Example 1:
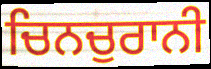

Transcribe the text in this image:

ਚਿਨਚੁਰਾਨੀ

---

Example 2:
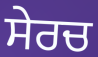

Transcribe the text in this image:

ਸੇਰਚ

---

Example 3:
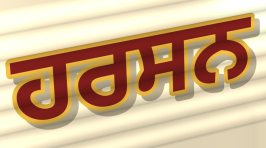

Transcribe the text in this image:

ਹਰਸਨ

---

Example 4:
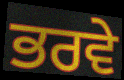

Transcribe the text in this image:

ਭਰਵੇ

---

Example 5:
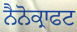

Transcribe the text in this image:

ਨੈਨੋਕ੍ਰਾਫਟ